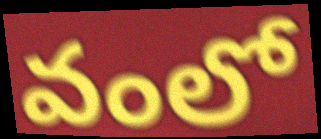
వంలో